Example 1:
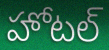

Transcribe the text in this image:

హోటల్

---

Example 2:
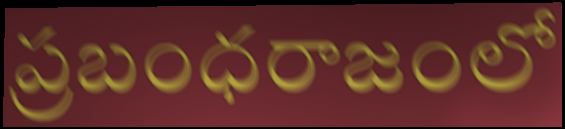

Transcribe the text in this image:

ప్రబంధరాజంలో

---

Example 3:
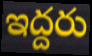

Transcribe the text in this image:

ఇద్దరు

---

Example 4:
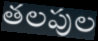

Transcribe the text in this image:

తలపుల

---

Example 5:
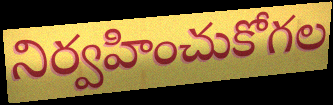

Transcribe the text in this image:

నిర్వహించుకోగల